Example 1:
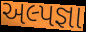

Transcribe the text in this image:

અલ્પજ્ઞા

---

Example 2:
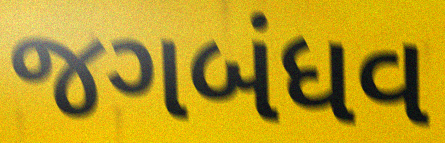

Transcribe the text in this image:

જગબંધવ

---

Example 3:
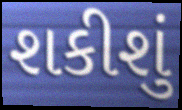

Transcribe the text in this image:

શકીશું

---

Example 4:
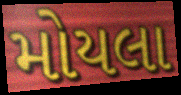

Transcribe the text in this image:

મોયલા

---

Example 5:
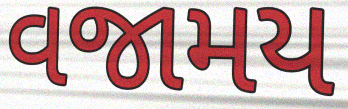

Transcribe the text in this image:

વજામય